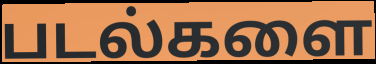
படல்களை